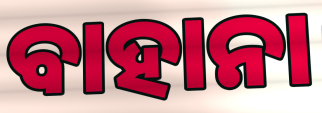
ବାହାନା